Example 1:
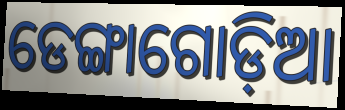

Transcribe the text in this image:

ଡେଙ୍ଗାଗୋଡ଼ିଆ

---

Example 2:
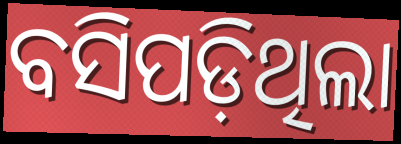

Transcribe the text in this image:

ବସିପଡ଼ିଥିଲା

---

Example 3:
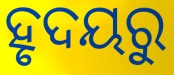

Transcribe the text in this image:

ହୃଦୟରୁ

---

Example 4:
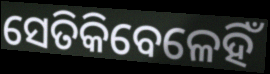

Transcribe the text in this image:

ସେତିକିବେଳେହିଁ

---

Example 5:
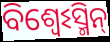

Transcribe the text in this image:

ବିଶ୍ଵେଽସ୍ମିନ୍